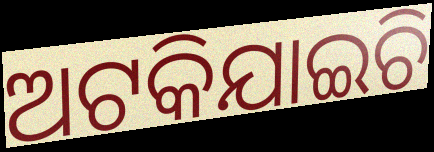
ଅଟକିଯାଇଚି